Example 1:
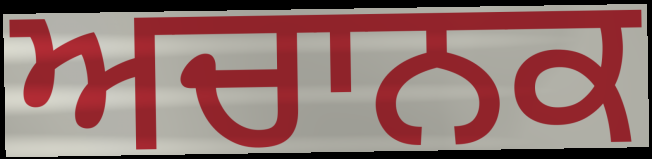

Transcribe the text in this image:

ਅਚਾਨਕ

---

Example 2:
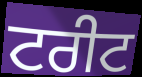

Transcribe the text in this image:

ਟਰੀਟ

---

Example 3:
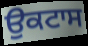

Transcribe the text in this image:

ਉਕਟਾਸ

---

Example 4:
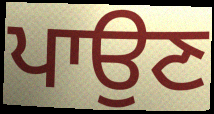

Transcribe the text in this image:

ਪਾਉਣ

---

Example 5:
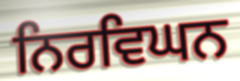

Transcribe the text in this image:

ਨਿਰਵਿਘਨ